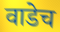
वाडेच